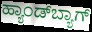
ಹ್ಯಾಂಡ್‌ಬ್ಯಾಗ್